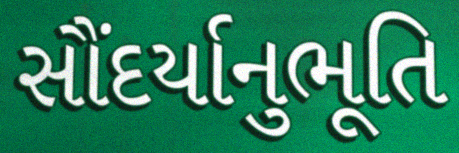
સૌંદર્યાનુભૂતિ